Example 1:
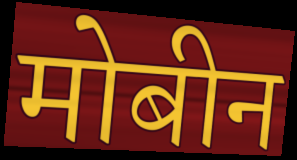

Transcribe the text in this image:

मोबीन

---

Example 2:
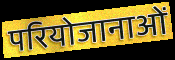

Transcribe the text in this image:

परियोजानाओं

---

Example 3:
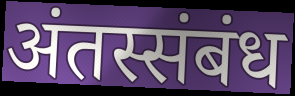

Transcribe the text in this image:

अंतस्संबंध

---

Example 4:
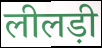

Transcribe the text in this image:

लीलड़ी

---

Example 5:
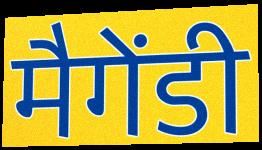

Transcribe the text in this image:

मैगेंडी